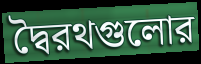
দ্বৈরথগুলোর